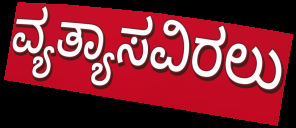
ವ್ಯತ್ಯಾಸವಿರಲು